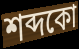
শব্দকো